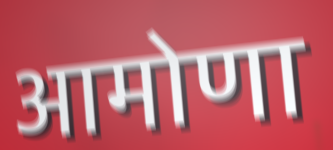
आमोणा